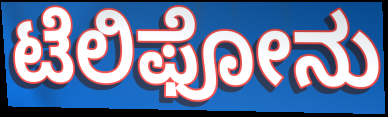
ಟೆಲಿಫೋನು